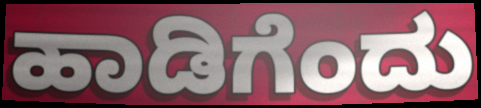
ಹಾಡಿಗೆಂದು